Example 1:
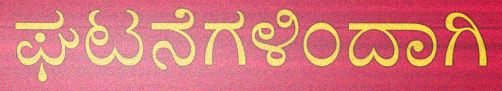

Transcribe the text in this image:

ಘಟನೆಗಳಿಂದಾಗಿ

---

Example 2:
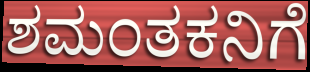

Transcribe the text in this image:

ಶಮಂತಕನಿಗೆ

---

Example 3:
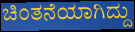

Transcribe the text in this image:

ಚಿಂತನೆಯಾಗಿದ್ದು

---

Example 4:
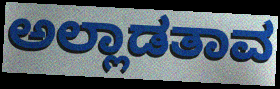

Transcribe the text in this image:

ಅಲ್ಲಾಡತಾವ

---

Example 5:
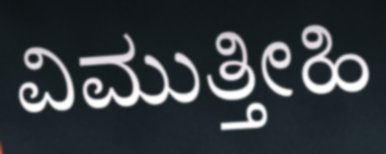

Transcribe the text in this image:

ವಿಮುತ್ತೀಹಿ